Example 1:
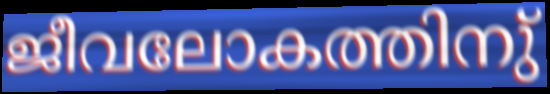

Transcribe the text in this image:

ജീവലോകത്തിനു്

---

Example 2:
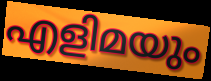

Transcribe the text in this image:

എളിമയും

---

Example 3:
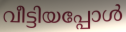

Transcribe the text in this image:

വീട്ടിയപ്പോൾ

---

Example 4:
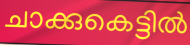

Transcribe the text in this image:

ചാക്കുകെട്ടിൽ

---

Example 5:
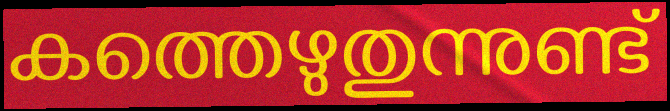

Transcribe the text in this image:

കത്തെഴുതുന്നുണ്ട്